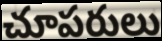
చూపరులు